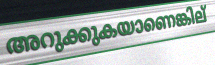
അറുക്കുകയാണെങ്കില്